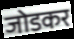
जोडकर